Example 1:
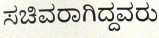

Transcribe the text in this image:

ಸಚಿವರಾಗಿದ್ದವರು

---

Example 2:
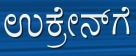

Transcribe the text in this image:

ಉಕ್ರೇನ್‌ಗೆ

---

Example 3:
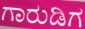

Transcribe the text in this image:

ಗಾರುಡಿಗ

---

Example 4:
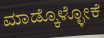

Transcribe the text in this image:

ಮಾಡ್ಕೊಳ್ಳೋಕೆ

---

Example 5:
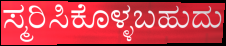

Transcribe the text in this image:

ಸ್ಮರಿಸಿಕೊಳ್ಳಬಹುದು